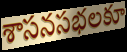
శాసనసభలకూ